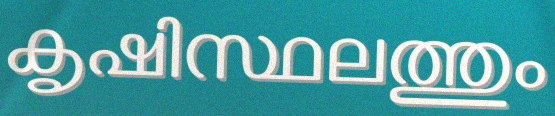
കൃഷിസ്ഥലത്തും